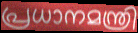
പ്രധാനമന്ത്രി